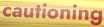
cautioning